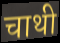
चाथी